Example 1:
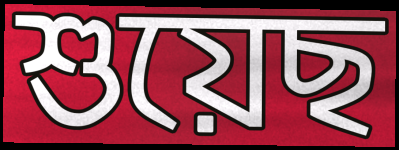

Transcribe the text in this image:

শুয়েছ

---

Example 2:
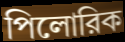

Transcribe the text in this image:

পিলোরিক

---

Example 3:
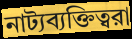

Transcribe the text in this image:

নাট্যব্যক্তিত্বরা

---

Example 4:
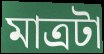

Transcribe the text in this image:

মাত্রটা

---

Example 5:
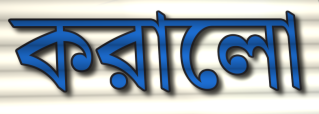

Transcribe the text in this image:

করালো